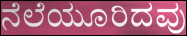
ನೆಲೆಯೂರಿದವು